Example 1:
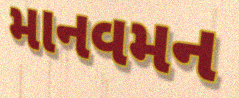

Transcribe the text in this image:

માનવમન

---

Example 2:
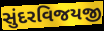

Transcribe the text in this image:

સુંદરવિજયજી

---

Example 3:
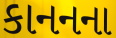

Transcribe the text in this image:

કાનનના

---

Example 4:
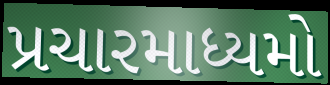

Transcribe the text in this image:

પ્રચારમાધ્યમો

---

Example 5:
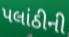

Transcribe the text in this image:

પલાંઠીની